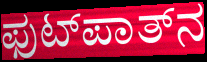
ಫುಟ್‌ಪಾತ್‌ನ